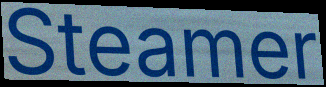
Steamer